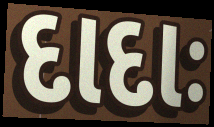
દાદાઃ